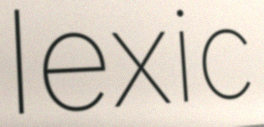
lexic